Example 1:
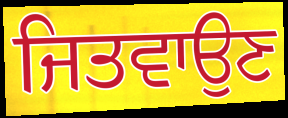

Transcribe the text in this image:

ਜਿਤਵਾਉਣ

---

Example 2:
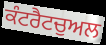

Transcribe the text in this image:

ਕੰਟਰੈਟਚੁਅਲ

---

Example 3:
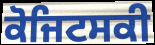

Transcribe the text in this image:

ਕੋਜਿਟਸਕੀ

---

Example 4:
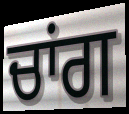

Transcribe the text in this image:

ਚਾਂਗ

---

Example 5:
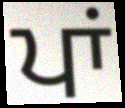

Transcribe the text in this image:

ਪਾਂ